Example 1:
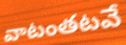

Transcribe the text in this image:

వాటంతటవే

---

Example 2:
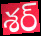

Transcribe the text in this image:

శర్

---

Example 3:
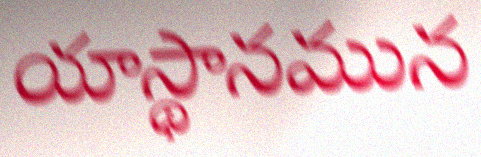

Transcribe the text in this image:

యాస్థానమున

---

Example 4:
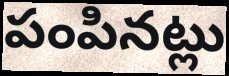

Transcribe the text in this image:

పంపినట్లు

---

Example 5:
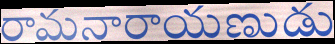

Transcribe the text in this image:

రామనారాయణుడు